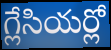
గ్లేసియర్లో